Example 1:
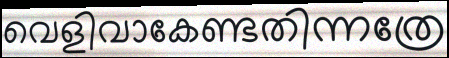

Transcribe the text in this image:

വെളിവാകേണ്ടതിന്നത്രേ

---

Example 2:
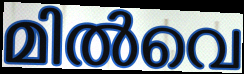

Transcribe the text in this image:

മിൽവെ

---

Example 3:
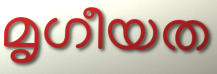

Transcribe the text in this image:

മൃഗീയത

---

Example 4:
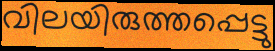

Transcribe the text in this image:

വിലയിരുത്തപ്പെട്ടു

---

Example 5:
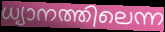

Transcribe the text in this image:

ധ്യാനത്തിലെന്ന